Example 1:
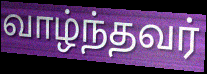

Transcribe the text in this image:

வாழ்ந்தவர்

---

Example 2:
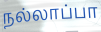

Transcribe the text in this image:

நல்லாப்பா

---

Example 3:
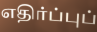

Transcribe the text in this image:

எதிர்ப்புப்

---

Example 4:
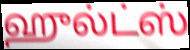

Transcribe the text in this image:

ஹுல்ட்ஸ்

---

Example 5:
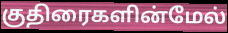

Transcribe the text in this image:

குதிரைகளின்மேல்